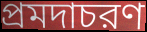
প্রমদাচরণ